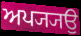
ਅਪ੍ਯ੍ਯਉ